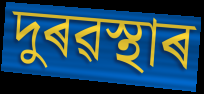
দুৰৱস্থাৰ